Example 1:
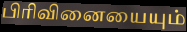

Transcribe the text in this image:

பிரிவினையையும்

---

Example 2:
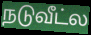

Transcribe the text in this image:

நடுவீட்ல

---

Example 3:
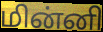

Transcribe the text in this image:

மின்னி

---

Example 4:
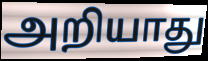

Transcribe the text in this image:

அறியாது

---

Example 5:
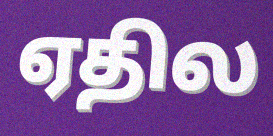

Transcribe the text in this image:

ஏதில